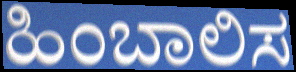
ಹಿಂಬಾಲಿಸ